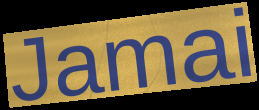
Jamai